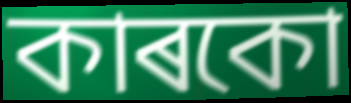
কাৰকো